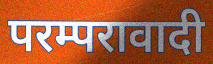
परम्परावादी